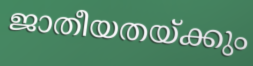
ജാതീയതയ്ക്കും